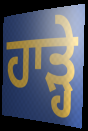
ਹਾੜ੍ਹੇ